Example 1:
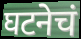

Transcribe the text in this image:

घटनेचं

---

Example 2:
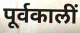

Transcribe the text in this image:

पूर्वकालीं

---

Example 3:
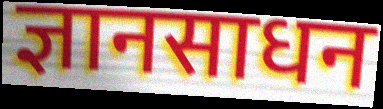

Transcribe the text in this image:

ज्ञानसाधन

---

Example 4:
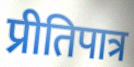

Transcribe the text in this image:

प्रीतिपात्र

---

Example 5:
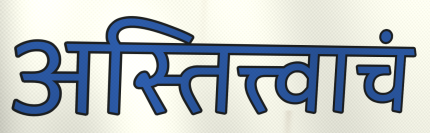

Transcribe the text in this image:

अस्तित्त्वाचं